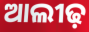
ଆଲୀଢ଼